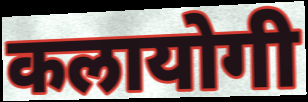
कलायोगी